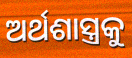
ଅର୍ଥଶାସ୍ତ୍ରକୁ